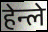
हेन्ले